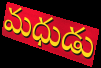
మధుడు